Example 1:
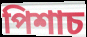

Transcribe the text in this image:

পিশাচ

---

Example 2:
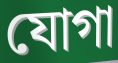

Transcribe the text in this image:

যোগা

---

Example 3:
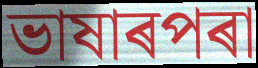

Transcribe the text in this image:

ভাষাৰপৰা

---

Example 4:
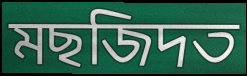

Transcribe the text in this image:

মছজিদত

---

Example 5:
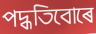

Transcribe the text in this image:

পদ্ধতিবোৰে